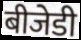
बीजेडी